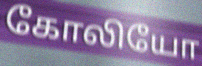
கோலியோ